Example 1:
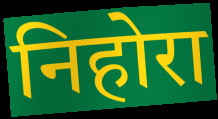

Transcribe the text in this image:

निहोरा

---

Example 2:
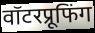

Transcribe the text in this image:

वॉटरप्रूफिंग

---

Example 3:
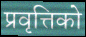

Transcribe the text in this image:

प्रवृत्तिको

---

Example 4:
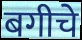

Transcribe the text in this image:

बगीचे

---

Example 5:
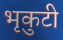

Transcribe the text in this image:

भृकुटी